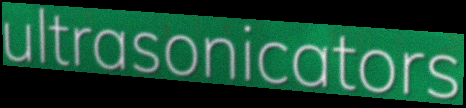
ultrasonicators